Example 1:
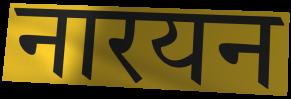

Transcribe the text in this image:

नारयन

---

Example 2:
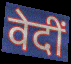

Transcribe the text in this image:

वेदीं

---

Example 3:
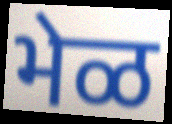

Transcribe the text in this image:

भेळ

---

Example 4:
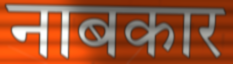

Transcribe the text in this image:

नाबकार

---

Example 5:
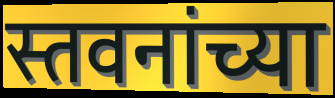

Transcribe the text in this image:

स्तवनांच्या